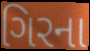
ગિરના